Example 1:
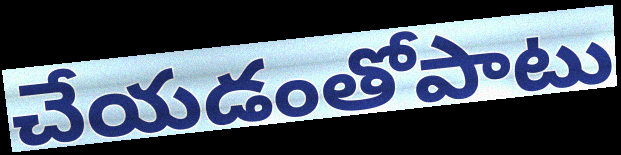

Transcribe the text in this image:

చేయడంతోపాటు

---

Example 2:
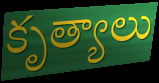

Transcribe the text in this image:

కృత్యాలు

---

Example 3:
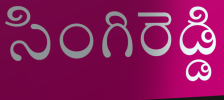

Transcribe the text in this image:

సింగిరెడ్డి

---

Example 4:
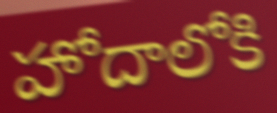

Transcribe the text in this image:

హోదాలోకి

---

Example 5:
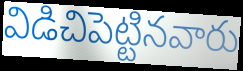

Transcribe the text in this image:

విడిచిపెట్టినవారు